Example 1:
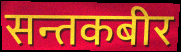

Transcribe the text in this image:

सन्तकबीर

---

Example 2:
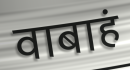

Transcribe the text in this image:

वाबाहं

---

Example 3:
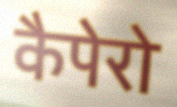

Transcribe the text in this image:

कैपेरो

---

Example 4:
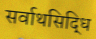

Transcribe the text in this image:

सर्वाथसिद्धि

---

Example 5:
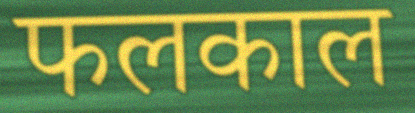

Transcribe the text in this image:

फलकाल